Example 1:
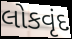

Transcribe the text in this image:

લોકવૃંદ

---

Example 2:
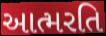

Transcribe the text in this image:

આત્મરતિ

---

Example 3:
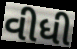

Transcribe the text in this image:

વીધી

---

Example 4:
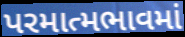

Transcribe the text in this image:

પરમાત્મભાવમાં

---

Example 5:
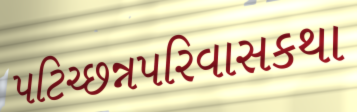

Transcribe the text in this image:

પટિચ્છન્નપરિવાસકથા